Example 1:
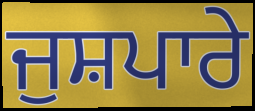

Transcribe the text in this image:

ਜੁਸ਼ਪਾਰੇ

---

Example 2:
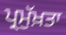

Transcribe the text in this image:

ਪ੍ਰਮੁੱਖ਼ਤਾ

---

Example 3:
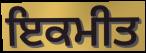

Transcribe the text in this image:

ਇਕਮੀਤ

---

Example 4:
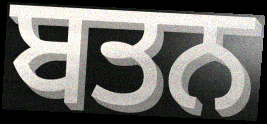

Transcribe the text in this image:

ਬਤਨ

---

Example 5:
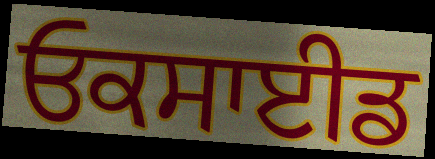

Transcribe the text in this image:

ਓਕਸਾਈਡ